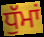
ਧੁੱਮਾਂ